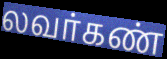
லவர்கண்